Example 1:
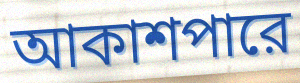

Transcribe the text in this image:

আকাশপারে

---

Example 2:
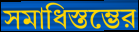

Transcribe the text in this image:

সমাধিস্তম্ভের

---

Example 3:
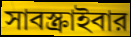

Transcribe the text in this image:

সাবস্ক্রাইবার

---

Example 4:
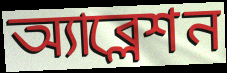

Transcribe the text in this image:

অ্যাব্লেশন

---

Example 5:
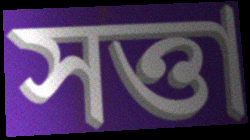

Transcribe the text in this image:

সত্তা